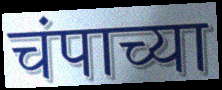
चंपाच्या